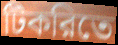
টিকরিতে